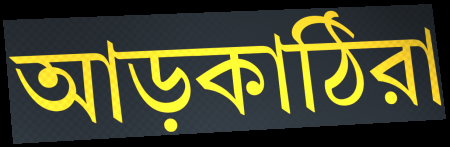
আড়কাঠিরা